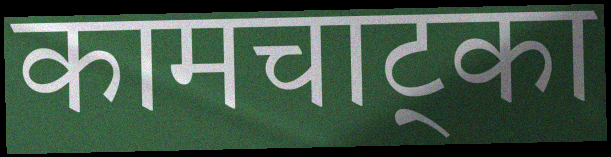
कामचाट्का